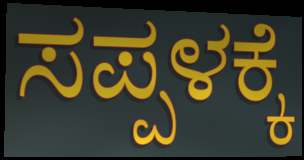
ಸಪ್ಪಳಕ್ಕೆ